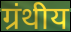
ग्रंथीय